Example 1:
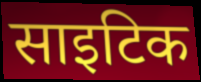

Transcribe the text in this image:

साइटिक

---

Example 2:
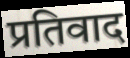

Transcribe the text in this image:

प्रतिवाद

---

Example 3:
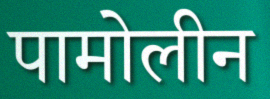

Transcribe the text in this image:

पामोलीन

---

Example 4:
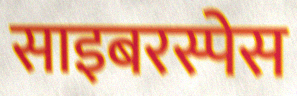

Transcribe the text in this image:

साइबरस्पेस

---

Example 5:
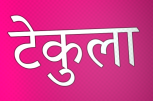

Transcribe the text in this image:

टेकुला